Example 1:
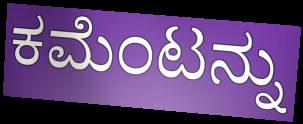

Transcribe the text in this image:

ಕಮೆಂಟನ್ನು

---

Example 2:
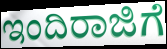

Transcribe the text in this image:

ಇಂದಿರಾಜಿಗೆ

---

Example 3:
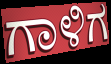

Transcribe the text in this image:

ಗಾಳಿಗ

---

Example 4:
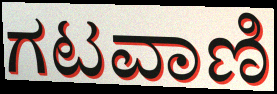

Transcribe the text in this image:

ಗಟವಾಣಿ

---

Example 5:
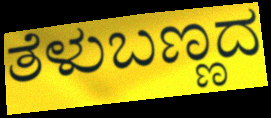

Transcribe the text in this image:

ತೆಳುಬಣ್ಣದ